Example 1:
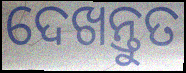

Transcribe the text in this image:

ଦେଖନ୍ତୁତ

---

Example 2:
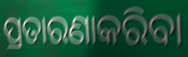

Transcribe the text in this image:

ପ୍ରତାରଣାକରିବା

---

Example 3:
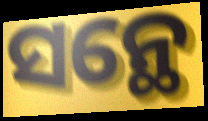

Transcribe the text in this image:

ସନ୍ଥେ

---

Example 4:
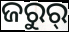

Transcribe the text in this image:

ଜରୁର୍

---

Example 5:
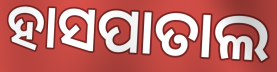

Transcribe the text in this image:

ହାସପାତାଲ